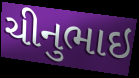
ચીનુભાઇ